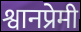
श्वानप्रेमी